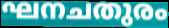
ഘനചതുരം